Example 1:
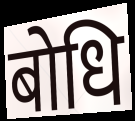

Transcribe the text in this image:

बोधि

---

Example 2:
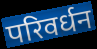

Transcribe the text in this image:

परिवर्धन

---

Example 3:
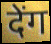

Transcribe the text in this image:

देंग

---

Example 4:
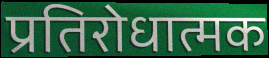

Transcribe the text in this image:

प्रतिरोधात्मक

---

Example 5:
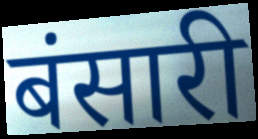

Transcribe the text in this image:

बंसारी